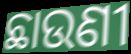
ଛାଉଣୀ